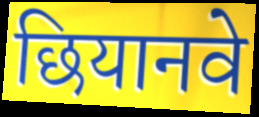
छियानवे